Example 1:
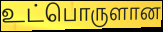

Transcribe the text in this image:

உட்பொருளான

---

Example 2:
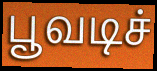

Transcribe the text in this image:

பூவடிச்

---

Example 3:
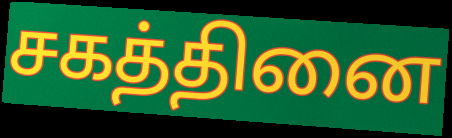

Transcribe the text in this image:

சகத்தினை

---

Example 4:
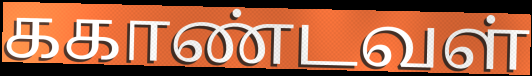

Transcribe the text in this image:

ககாண்டவள்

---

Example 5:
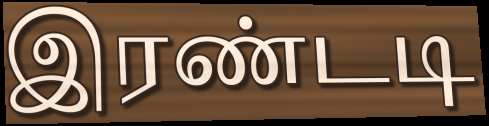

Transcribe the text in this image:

இரண்டடி